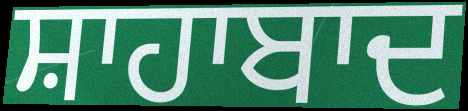
ਸ਼ਾਹਾਬਾਦ